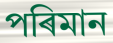
পৰিমান